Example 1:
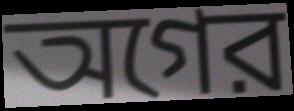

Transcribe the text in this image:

অগের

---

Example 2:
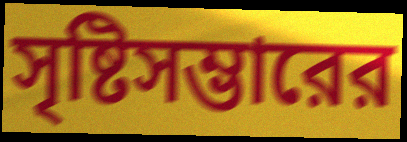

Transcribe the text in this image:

সৃষ্টিসম্ভারের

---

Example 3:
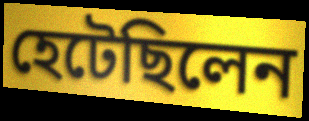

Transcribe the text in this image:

হেটেছিলেন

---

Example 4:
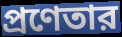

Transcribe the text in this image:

প্রণেতার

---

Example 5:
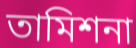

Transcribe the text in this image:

তামিশনা